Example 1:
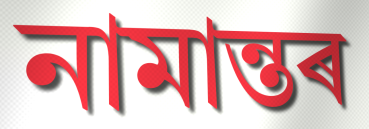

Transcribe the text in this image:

নামান্তৰ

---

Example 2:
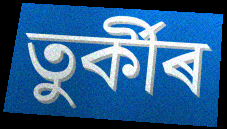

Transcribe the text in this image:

তুৰ্কীৰ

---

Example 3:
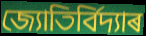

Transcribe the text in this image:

জ্যোতিৰ্বিদ্যাৰ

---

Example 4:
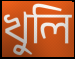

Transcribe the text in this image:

খুলি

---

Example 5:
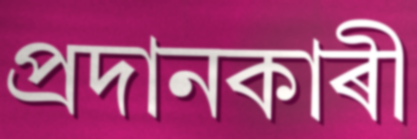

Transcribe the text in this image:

প্ৰদানকাৰী